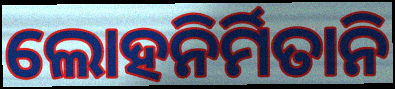
ଲୋହନିର୍ମିତାନି